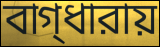
বাগ্‌ধারায়